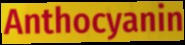
Anthocyanin